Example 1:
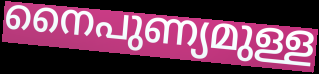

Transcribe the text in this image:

നൈപുണ്യമുള്ള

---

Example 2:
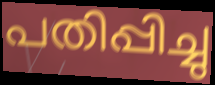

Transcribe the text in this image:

പതിപ്പിച്ചു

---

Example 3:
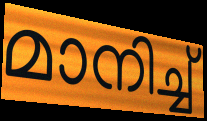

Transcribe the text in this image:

മാനിച്ച്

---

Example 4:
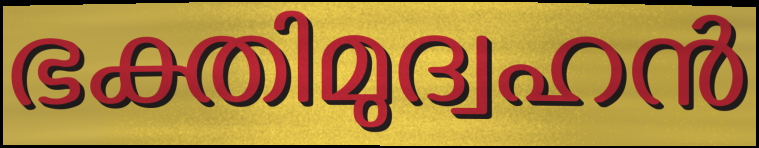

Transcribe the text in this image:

ഭക്തിമുദ്വഹൻ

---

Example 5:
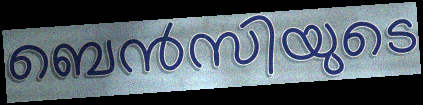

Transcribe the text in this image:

ബെൻസിയുടെ